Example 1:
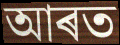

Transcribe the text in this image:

আৰত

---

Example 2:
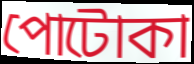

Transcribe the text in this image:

পোটোকা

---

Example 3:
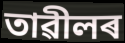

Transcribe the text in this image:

তাৱীলৰ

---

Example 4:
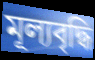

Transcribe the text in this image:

মূল্যবৃদ্ধি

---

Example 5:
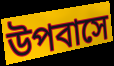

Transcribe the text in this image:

উপবাসে